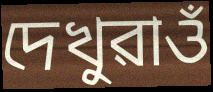
দেখুৱাওঁ